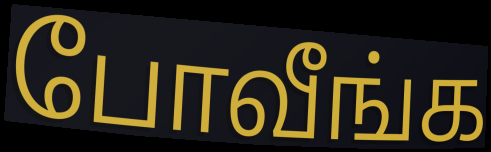
போவீங்க